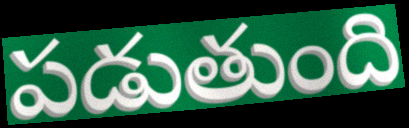
పడుతుంది